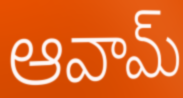
ఆవామ్